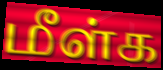
மீள்க